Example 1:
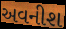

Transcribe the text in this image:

અવનીશ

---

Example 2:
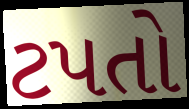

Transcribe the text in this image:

ટપતો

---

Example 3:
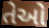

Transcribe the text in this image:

તેઓે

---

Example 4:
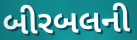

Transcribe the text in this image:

બીરબલની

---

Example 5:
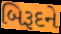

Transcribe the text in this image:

બિરૂદને